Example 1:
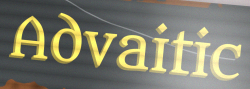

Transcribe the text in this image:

Advaitic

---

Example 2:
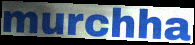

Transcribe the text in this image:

murchha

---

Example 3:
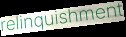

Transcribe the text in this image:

relinquishment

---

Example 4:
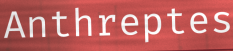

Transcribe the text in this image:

Anthreptes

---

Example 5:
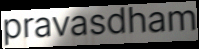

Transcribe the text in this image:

pravasdham